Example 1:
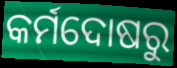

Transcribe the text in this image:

କର୍ମଦୋଷରୁ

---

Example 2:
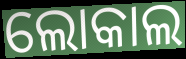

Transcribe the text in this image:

ଲୋକାଲ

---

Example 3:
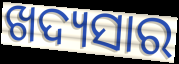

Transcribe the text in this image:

ଖଦ୍ୟସାର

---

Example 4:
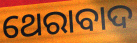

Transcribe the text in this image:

ଥେରାବାଦ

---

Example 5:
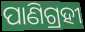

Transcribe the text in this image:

ପାଣିଗ୍ରହୀ